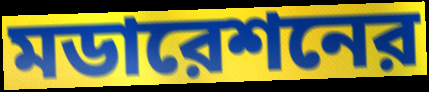
মডারেশনের